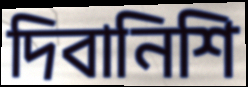
দিবানিশি